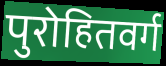
पुरोहितवर्ग